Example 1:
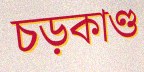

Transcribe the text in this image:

চড়কাণ্ড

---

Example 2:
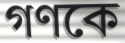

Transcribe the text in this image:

গণকে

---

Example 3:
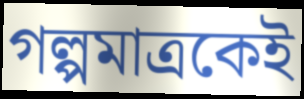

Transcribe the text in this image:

গল্পমাত্রকেই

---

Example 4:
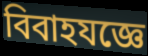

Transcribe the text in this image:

বিবাহযজ্ঞে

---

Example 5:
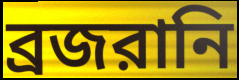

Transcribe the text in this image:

ব্রজরানি